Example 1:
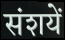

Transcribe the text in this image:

संशयें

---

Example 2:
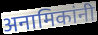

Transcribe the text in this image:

अनामिकांनी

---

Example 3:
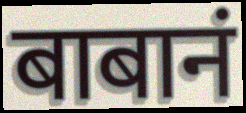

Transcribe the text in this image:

बाबानं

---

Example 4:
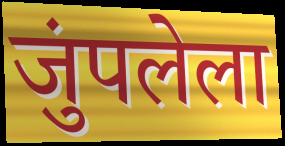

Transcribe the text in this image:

जुंपलेला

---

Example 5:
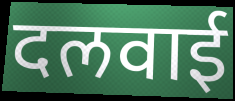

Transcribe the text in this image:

दलवाई